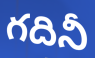
గదినీ